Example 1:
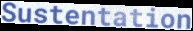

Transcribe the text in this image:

Sustentation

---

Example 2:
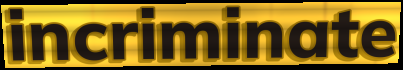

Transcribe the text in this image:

incriminate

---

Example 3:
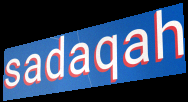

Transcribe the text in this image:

sadaqah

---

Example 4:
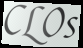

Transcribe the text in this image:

CLOs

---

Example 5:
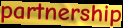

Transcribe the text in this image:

partnership